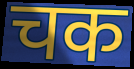
चक